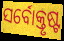
ସର୍ବୋକ୍ତୃଷ୍ଟ